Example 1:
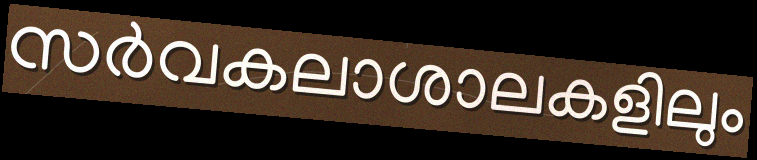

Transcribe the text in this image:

സർവകലാശാലകളിലും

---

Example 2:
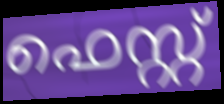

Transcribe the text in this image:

ഫെസ്റ്റ്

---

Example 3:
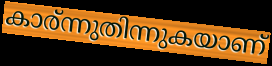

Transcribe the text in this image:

കാര്ന്നുതിന്നുകയാണ്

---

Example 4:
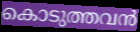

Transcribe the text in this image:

കൊടുത്തവൻ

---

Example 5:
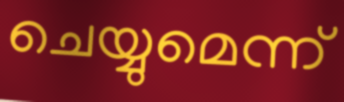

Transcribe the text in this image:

ചെയ്യുമെന്ന്